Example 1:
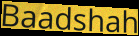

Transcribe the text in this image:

Baadshah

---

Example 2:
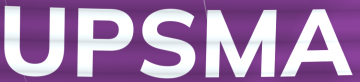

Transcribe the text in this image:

UPSMA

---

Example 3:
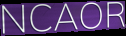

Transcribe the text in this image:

NCAOR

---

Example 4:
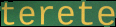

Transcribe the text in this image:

terete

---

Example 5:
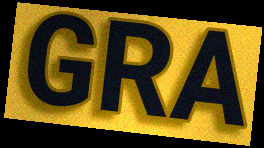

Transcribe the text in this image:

GRA